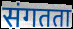
संगतता